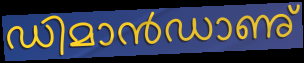
ഡിമാൻഡാണു്